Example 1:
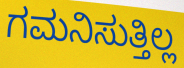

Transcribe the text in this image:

ಗಮನಿಸುತ್ತಿಲ್ಲ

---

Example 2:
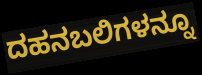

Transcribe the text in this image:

ದಹನಬಲಿಗಳನ್ನೂ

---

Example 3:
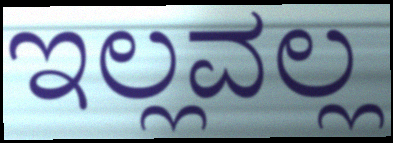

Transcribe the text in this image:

ಇಲ್ಲವಲ್ಲ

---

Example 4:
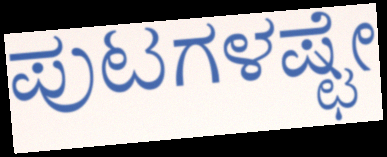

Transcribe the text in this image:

ಪುಟಗಳಷ್ಟೇ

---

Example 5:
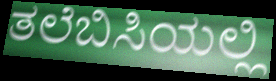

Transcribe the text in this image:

ತಲೆಬಿಸಿಯಲ್ಲಿ